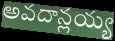
అవదాన్లయ్య